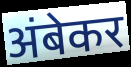
अंबेकर